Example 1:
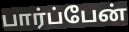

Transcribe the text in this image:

பார்ப்பேன்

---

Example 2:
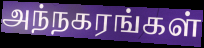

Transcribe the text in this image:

அந்நகரங்கள்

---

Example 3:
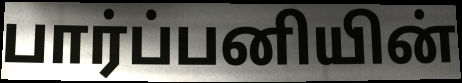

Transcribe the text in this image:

பார்ப்பனியின்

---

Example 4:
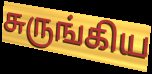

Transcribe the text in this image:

சுருங்கிய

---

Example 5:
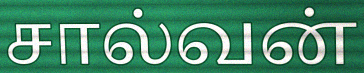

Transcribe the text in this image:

சால்வன்